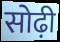
सोढ़ी